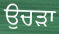
ਉਚੜਾ